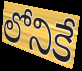
లోనికే